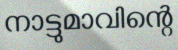
നാട്ടുമാവിന്റെ